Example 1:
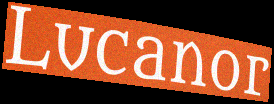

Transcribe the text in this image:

Lucanor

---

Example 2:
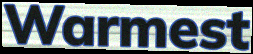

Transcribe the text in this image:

Warmest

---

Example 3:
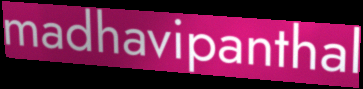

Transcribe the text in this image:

madhavipanthal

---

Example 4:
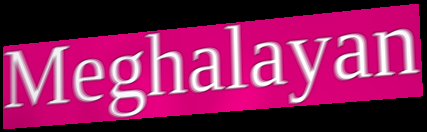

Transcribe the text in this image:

Meghalayan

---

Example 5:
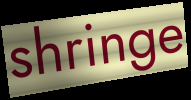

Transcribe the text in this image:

shringe